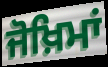
ਜੋਖ਼ਿਮਾਂ